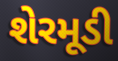
શેરમૂડી